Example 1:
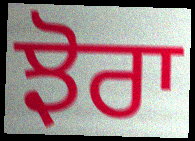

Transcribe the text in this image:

ਝੋਰਾ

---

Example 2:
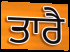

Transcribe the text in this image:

ਤਾਰੈ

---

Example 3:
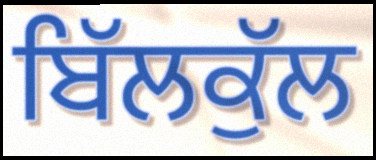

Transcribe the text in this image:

ਬਿੱਲਕੁੱਲ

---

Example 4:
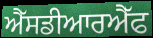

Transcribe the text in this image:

ਐੱਸਡੀਆਰਐੱਫ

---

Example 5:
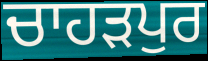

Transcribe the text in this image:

ਚਾਹਡ਼ਪੁਰ